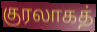
குரலாகத்